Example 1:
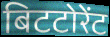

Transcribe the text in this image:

बिटटोरेंट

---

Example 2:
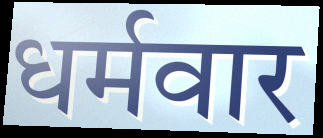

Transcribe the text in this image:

धर्मवार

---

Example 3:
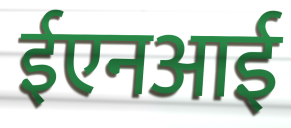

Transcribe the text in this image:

ईएनआई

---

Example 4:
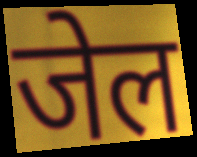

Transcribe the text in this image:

जेल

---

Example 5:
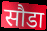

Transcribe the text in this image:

सौडा